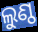
ଲୁଣ୍ଠ